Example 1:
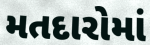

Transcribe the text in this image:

મતદારોમાં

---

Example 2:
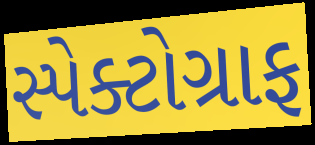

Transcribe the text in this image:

સ્પેક્ટોગ્રાફ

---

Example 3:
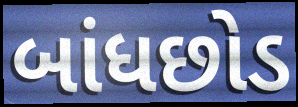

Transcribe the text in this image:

બાંધછોડ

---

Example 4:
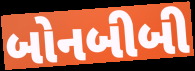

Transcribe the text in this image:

બોનબીબી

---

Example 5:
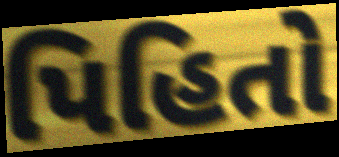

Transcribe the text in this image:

પિહિતો